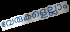
വേരുകളെല്ലാം